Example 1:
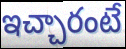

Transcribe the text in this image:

ఇచ్చారంటే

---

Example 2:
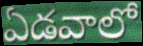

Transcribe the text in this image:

ఏడవాలో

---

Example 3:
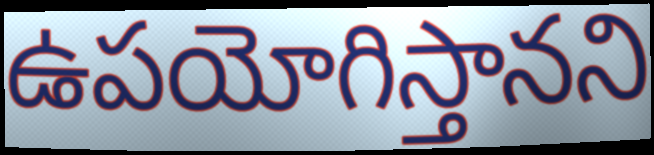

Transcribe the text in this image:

ఉపయోగిస్తానని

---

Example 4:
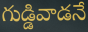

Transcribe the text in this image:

గుడ్డివాడనే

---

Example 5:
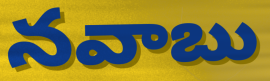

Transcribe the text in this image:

నవాబు